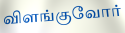
விளங்குவோர்